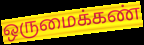
ஒருமைக்கண்